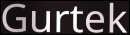
Gurtek